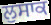
ਲੁਸਾਕ